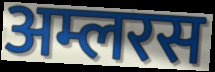
अम्लरस